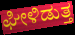
ಘೀಳಿಡುತ್ತ